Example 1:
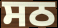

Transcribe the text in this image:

ਸਠ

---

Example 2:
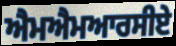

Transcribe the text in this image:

ਐਮਐਮਆਰਸੀਏ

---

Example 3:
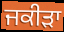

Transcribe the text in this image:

ਜਕੀੜਾ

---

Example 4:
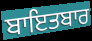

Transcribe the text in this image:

ਬਾਇਤਬਾਰ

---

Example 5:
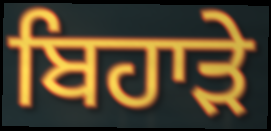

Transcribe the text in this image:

ਬਿਹਾੜੇ